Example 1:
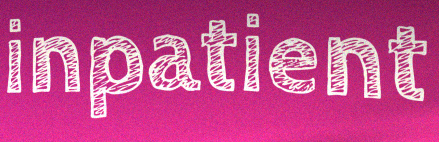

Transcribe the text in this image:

inpatient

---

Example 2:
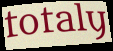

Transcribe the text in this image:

totaly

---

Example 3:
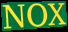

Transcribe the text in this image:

NOX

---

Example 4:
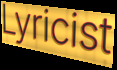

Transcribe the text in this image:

Lyricist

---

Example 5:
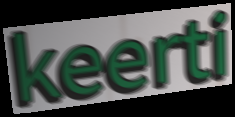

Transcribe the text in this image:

keerti